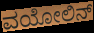
ವಯೋಲಿನ್